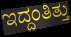
ಇದ್ದಂತಿತ್ತು